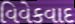
વિવેકવાદ